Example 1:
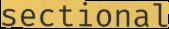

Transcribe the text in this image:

sectional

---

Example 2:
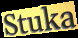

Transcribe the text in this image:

Stuka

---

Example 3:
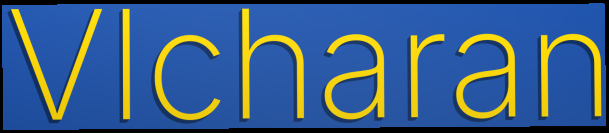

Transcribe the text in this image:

VIcharan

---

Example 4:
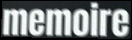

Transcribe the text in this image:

memoire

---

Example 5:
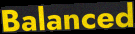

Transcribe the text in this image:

Balanced